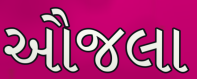
ઔજલા